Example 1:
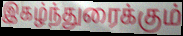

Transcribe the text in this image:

இகழ்ந்துரைக்கும்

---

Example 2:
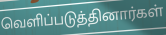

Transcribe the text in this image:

வெளிப்படுத்தினார்கள்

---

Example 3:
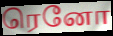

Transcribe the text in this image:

ரெனோ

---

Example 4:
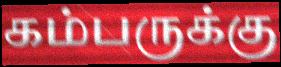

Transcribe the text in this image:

கம்பருக்கு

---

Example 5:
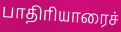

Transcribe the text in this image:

பாதிரியாரைச்